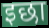
इछा